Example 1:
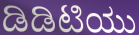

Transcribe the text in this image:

ಡಿಡಿಟಿಯು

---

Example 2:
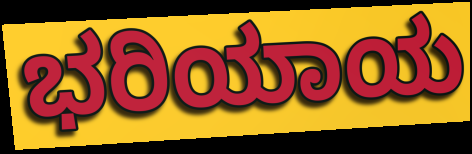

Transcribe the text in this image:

ಭರಿಯಾಯ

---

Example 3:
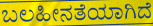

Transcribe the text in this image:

ಬಲಹೀನತೆಯಾಗಿದೆ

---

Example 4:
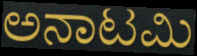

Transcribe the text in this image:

ಅನಾಟಮಿ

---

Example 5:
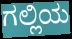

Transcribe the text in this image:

ಗಲ್ಲಿಯ